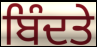
ਬਿੰਦਤੇ